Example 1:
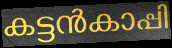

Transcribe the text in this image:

കട്ടൻകാപ്പി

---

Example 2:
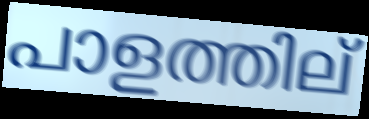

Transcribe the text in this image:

പാളത്തില്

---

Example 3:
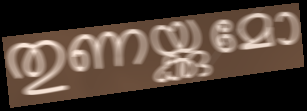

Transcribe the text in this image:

തുണയ്ക്കുമോ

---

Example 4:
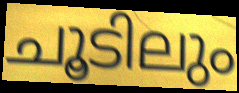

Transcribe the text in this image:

ചൂടിലും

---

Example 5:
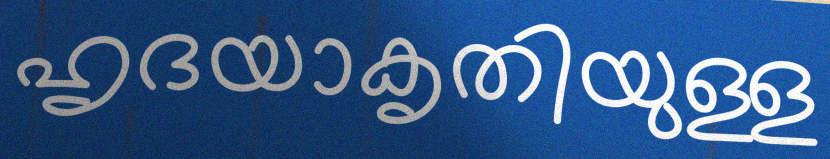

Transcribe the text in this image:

ഹൃദയാകൃതിയുള്ള